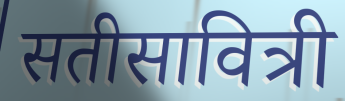
सतीसावित्री